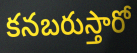
కనబరుస్తారో